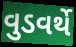
વુડવર્થે